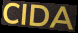
CIDA